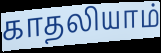
காதலியாம்